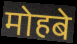
मोहबे